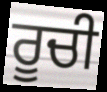
ਰੂਚੀ